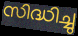
സിദ്ധിച്ചു